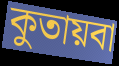
কুতায়বা